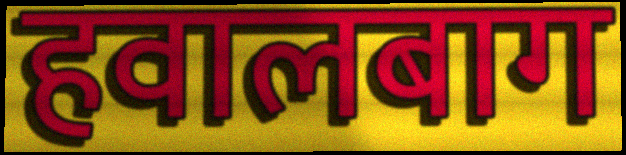
हवालबाग